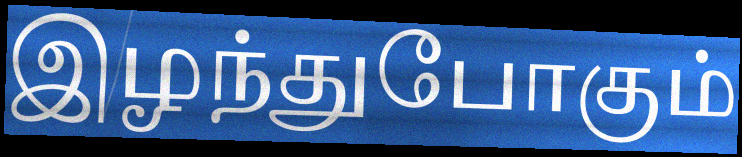
இழந்துபோகும்